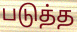
படுத்த